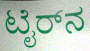
ಟೈರ್‌ನ